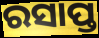
ରସାପ୍ତ